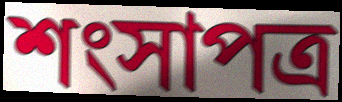
শংসাপত্র